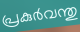
പ്രകുർവന്തു